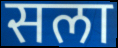
सला